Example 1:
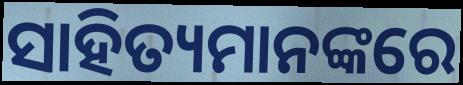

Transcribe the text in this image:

ସାହିତ୍ୟମାନଙ୍କରେ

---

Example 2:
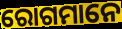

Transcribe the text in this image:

ରୋଗମାନେ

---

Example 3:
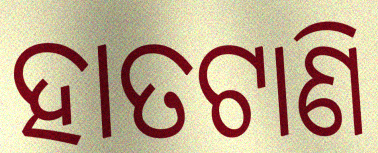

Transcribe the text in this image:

ହାତଟାଣି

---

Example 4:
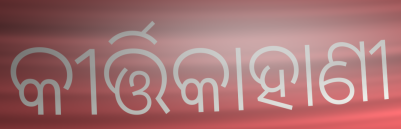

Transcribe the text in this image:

କୀର୍ତ୍ତିକାହାଣୀ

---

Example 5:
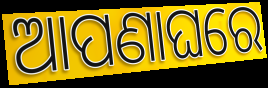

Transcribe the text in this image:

ଆପଣାଘରେ